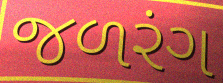
જળરંગ